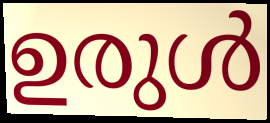
ഉരുൾ